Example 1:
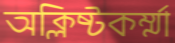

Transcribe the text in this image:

অক্লিষ্টকর্ম্মা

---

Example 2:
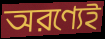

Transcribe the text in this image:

অরণ্যেই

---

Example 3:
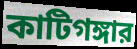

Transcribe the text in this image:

কাটিগঙ্গার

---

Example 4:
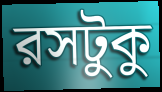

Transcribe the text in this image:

রসটুকু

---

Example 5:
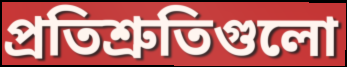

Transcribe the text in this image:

প্রতিশ্রুতিগুলো